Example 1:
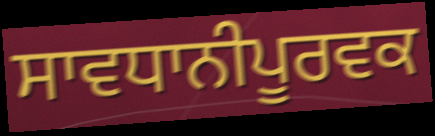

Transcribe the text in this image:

ਸਾਵਧਾਨੀਪੂਰਵਕ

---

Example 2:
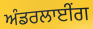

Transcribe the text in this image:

ਅੰਡਰਲਾਈੰਗ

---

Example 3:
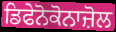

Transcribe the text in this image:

ਡਿਫੇਨੋਕੋਨਾਜ਼ੋਲ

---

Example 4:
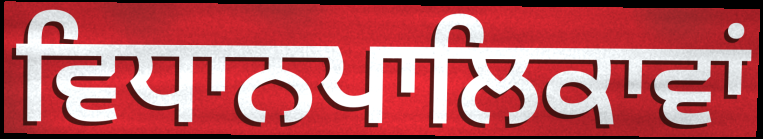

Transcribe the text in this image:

ਵਿਧਾਨਪਾਲਿਕਾਵਾਂ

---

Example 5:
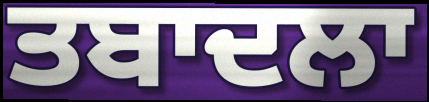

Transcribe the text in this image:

ਤਬਾਦਲਾ